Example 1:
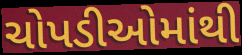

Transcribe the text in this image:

ચોપડીઓમાંથી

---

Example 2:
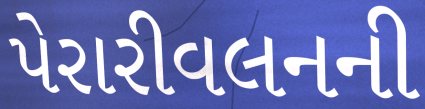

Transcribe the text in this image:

પેરારીવલનની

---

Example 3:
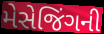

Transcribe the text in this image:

મેસેજિંગની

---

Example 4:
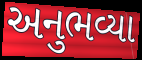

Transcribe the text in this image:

અનુભવ્યા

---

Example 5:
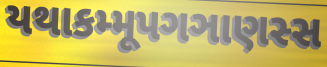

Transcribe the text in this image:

યથાકમ્મૂપગઞાણસ્સ